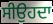
ਸੀਉਹਦਾ